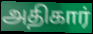
அதிகார்